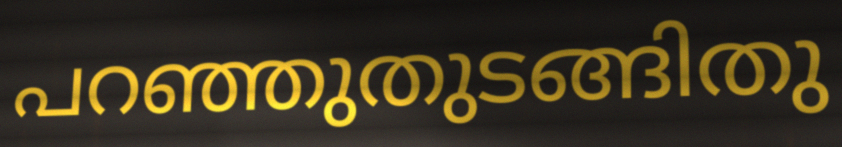
പറഞ്ഞുതുടങ്ങിതു